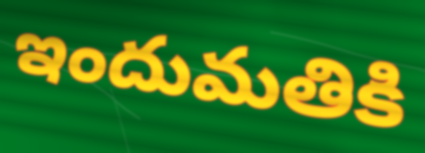
ఇందుమతికి